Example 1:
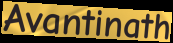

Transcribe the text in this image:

Avantinath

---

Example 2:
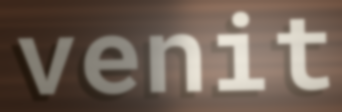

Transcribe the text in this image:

venit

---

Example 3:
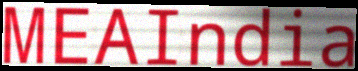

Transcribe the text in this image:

MEAIndia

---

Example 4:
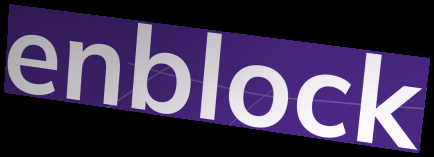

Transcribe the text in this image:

enblock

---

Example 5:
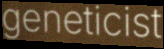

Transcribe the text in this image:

geneticist